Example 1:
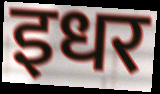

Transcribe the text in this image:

इधर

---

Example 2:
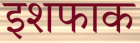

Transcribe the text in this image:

इशफाक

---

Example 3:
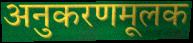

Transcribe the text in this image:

अनुकरणमूलक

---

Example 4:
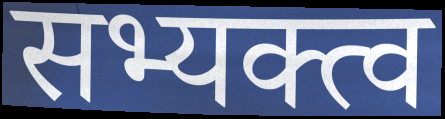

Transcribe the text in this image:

सभ्यक्त्व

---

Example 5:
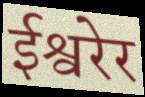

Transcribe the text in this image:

ईश्वरेर